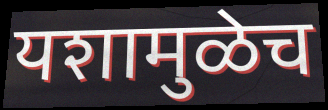
यशामुळेच